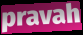
pravah